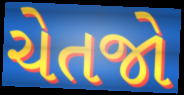
ચેતજો